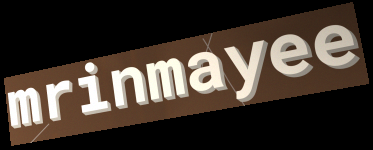
mrinmayee